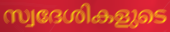
സ്വദേശികളുടെ